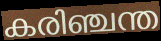
കരിഞ്ചന്ത